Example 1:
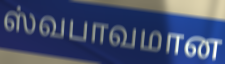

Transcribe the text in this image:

ஸ்வபாவமான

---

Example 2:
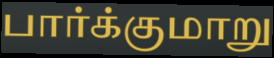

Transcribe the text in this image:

பார்க்குமாறு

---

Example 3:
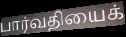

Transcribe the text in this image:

பார்வதியைக்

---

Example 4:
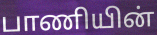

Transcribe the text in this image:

பாணியின்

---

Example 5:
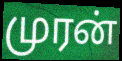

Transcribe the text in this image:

முரன்